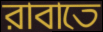
রাবাতে